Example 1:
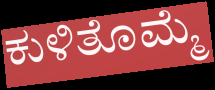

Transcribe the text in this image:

ಕುಳಿತೊಮ್ಮೆ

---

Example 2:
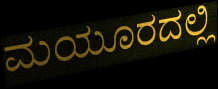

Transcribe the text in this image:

ಮಯೂರದಲ್ಲಿ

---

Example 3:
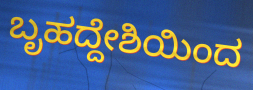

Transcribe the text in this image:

ಬೃಹದ್ದೇಶಿಯಿಂದ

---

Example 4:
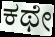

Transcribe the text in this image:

ಕಥೇ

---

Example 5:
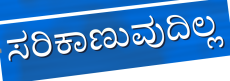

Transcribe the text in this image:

ಸರಿಕಾಣುವುದಿಲ್ಲ